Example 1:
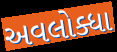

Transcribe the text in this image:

અવલોક્ધા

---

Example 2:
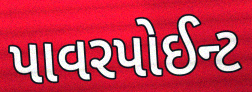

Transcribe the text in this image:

પાવરપોઈન્ટ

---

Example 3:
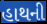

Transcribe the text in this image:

હાથની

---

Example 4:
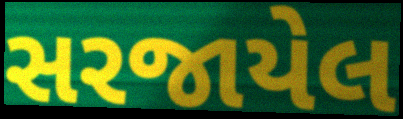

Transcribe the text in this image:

સરજાયેલ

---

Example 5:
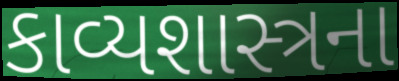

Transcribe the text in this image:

કાવ્યશાસ્ત્રના